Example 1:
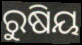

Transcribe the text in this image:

ରୁଷିୟ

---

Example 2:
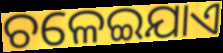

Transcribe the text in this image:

ଚଳେଇଯାଏ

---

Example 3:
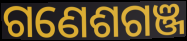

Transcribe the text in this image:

ଗଣେଶଗଞ୍ଜ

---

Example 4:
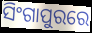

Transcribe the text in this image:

ସିଂଗାପୁରରେ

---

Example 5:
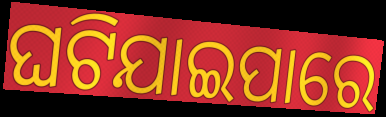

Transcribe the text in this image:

ଘଟିଯାଇପାରେ